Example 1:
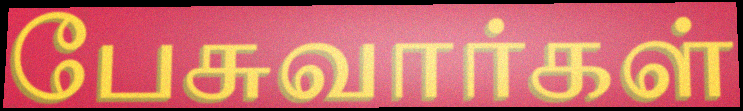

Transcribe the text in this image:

பேசுவார்கள்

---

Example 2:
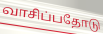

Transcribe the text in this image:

வாசிப்பதோடு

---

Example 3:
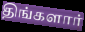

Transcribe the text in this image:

திங்களார்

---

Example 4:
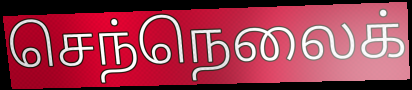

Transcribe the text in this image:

செந்நெலைக்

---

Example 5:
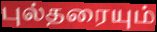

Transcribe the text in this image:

புல்தரையும்